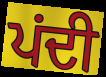
ਪਂਦੀ